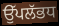
ਉੱਪਲੱਭਧ